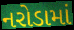
નરોડામાં